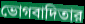
ভোগবাদিতার